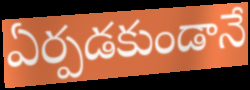
ఏర్పడకుండానే